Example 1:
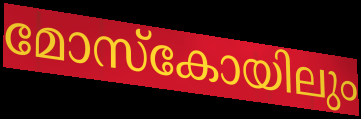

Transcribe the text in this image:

മോസ്കോയിലും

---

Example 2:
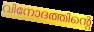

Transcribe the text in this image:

വിനോദത്തിന്റെ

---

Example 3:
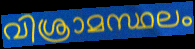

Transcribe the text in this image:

വിശ്രാമസ്ഥലം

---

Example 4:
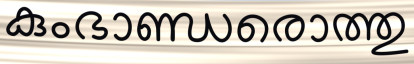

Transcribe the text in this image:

കുംഭാണ്ഡരൊത്തു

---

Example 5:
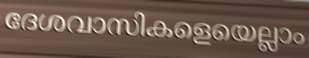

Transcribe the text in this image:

ദേശവാസികളെയെല്ലാം